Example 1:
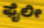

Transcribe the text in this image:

ಫೈಲೀ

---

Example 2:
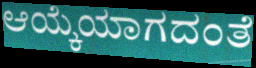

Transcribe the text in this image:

ಆಯ್ಕೆಯಾಗದಂತೆ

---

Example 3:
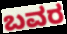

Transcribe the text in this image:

ಬವರ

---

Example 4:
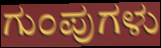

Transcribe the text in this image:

ಗುಂಪುಗಳು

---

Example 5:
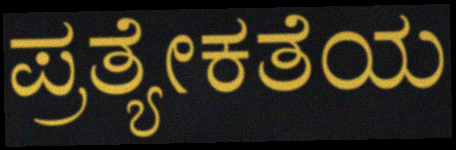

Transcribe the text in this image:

ಪ್ರತ್ಯೇಕತೆಯ